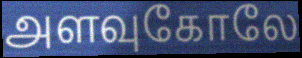
அளவுகோலே